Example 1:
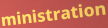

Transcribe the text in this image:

ministration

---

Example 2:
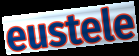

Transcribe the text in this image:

eustele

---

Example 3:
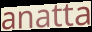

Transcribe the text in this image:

anatta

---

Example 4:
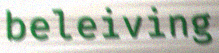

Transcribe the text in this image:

beleiving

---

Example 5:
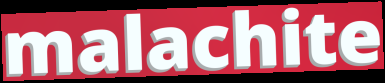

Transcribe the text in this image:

malachite